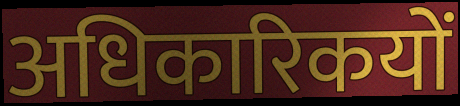
अधिकारिकयों